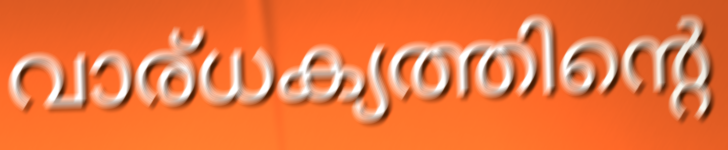
വാര്ധക്യത്തിന്റെ